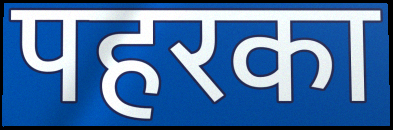
पहरका